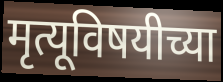
मृत्यूविषयीच्या